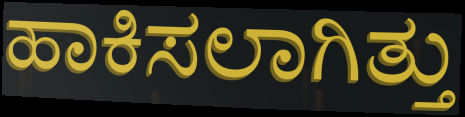
ಹಾಕಿಸಲಾಗಿತ್ತು